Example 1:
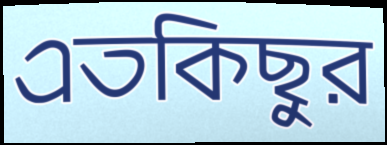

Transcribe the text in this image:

এতকিছুর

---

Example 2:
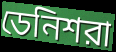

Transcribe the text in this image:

ডেনিশরা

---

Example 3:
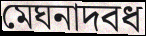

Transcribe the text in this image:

মেঘনাদবধ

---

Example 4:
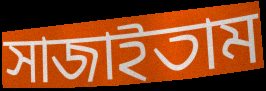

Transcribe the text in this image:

সাজাইতাম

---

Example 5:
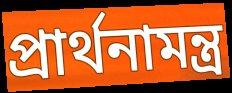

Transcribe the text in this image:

প্রার্থনামন্ত্র